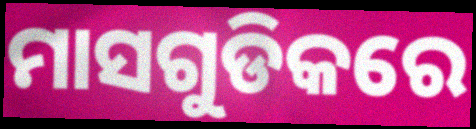
ମାସଗୁଡିକରେ